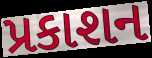
પ્રકાશન